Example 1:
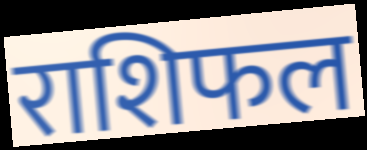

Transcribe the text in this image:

राशिफल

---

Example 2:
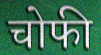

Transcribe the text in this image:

चोफी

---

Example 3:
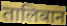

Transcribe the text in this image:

तालिबान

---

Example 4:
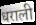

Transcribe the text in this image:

धराली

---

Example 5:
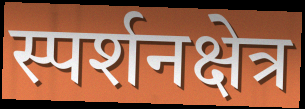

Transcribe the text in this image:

स्पर्शनक्षेत्र